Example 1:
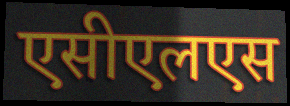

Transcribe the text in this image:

एसीएलएस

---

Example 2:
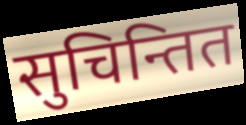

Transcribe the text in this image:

सुचिन्तित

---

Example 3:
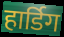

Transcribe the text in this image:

हार्डिग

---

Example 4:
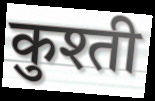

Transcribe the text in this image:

कुश्‍ती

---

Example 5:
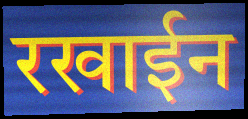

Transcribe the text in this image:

रखाईन